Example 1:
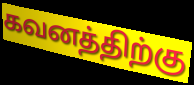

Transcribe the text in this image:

கவனத்திற்கு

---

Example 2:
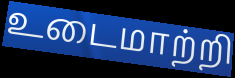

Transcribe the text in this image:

உடைமாற்றி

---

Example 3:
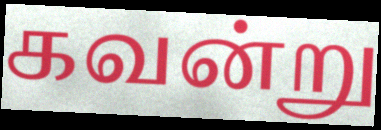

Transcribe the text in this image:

கவன்று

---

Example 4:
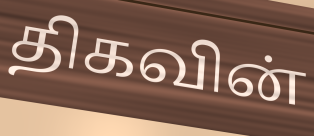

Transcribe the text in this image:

திகவின்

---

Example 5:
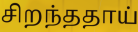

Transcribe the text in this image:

சிறந்ததாய்